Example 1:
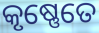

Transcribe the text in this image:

କୃଷ୍ଣେତେ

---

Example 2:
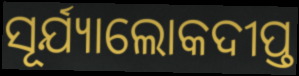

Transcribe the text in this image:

ସୂର୍ଯ୍ୟାଲୋକଦୀପ୍ତ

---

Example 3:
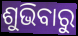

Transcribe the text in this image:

ଶୁଭିବାରୁ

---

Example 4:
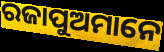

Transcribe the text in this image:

ରଜାପୁଅମାନେ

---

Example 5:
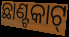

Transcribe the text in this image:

ଛାଣ୍ଟକାଟ୍